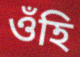
ওঁহি